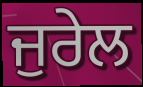
ਜੁਰੇਲ